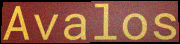
Avalos